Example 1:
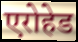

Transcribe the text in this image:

एरोहेड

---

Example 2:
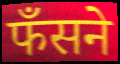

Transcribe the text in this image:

फँसने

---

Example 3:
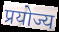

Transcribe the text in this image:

प्रयोज्य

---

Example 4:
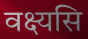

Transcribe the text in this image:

वक्ष्यसि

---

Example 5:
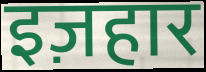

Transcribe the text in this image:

इज़हार